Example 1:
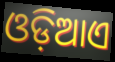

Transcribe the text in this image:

ଓଡ଼ିଆଏ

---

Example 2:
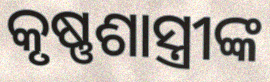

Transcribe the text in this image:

କୃଷ୍ଣଶାସ୍ତ୍ରୀଙ୍କ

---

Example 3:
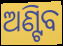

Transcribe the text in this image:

ଅଣ୍ଟିବ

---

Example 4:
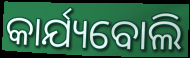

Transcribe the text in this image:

କାର୍ଯ୍ୟବୋଲି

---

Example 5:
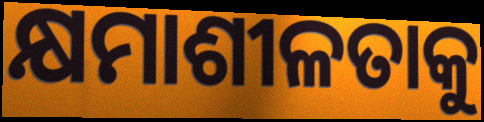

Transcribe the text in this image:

କ୍ଷମାଶୀଳତାକୁ